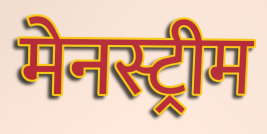
मेनस्ट्रीम